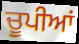
ਚੂਪੀਆਂ